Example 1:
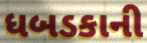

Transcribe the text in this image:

ધબડકાની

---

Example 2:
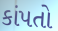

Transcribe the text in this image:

કાંપતો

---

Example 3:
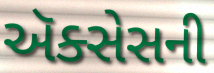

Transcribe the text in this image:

ઍક્સેસની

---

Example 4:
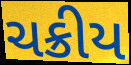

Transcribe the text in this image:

ચક્રીય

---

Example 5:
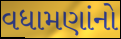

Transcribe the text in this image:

વધામણાંનો